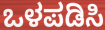
ಒಳಪಡಿಸಿ